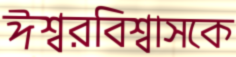
ঈশ্বরবিশ্বাসকে